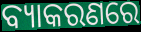
ବ୍ୟାକରଣରେ